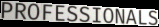
PROFESSIONALS